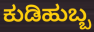
ಕುಡಿಹುಬ್ಬ